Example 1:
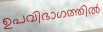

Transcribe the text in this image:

ഉപവിഭാഗത്തിൽ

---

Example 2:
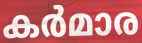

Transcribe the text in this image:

കർമാര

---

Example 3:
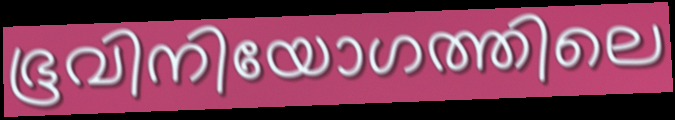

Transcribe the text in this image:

ഭൂവിനിയോഗത്തിലെ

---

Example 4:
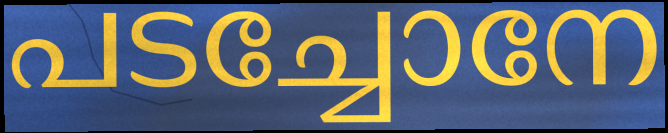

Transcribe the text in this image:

പടച്ചോനേ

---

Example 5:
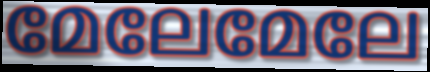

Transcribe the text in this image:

മേലേമേലേ